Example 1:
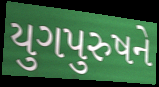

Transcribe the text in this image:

યુગપુરુષને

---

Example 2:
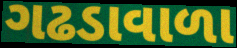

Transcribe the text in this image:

ગઢડાવાળા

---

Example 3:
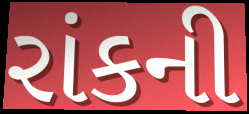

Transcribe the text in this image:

રાંકની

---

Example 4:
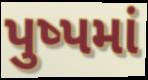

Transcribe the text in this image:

પુષ્પમાં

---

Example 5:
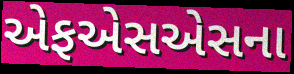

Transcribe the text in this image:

એફએસએસના